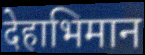
देहाभिमान